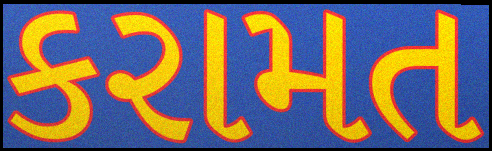
કરામત